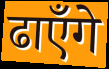
ढाएँगे